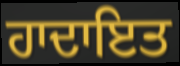
ਹਾਦਾਇਤ